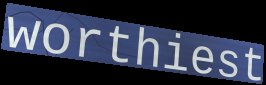
worthiest